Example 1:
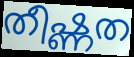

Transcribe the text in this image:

തീഷ്ണത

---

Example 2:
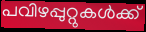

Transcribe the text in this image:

പവിഴപ്പുറ്റുകൾക്ക്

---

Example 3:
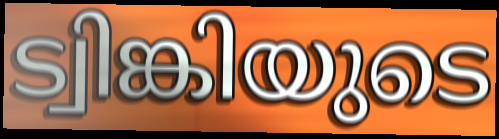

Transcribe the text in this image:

ട്വിങ്കിയുടെ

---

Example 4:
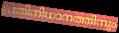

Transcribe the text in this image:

പ്രതിനിധാനത്തിനും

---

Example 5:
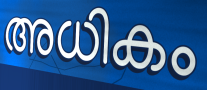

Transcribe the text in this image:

അധികം